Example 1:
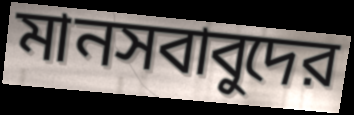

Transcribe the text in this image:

মানসবাবুদের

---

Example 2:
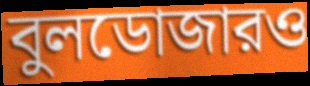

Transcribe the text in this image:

বুলডোজারও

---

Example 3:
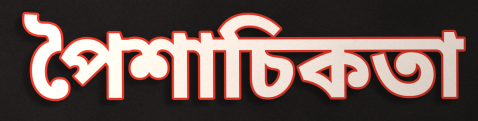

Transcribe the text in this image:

পৈশাচিকতা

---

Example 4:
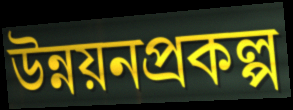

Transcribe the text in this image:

উন্নয়নপ্রকল্প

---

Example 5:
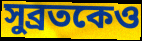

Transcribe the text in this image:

সুব্রতকেও